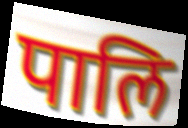
पालि